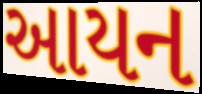
આયન